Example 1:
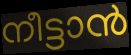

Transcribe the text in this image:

നീട്ടാൻ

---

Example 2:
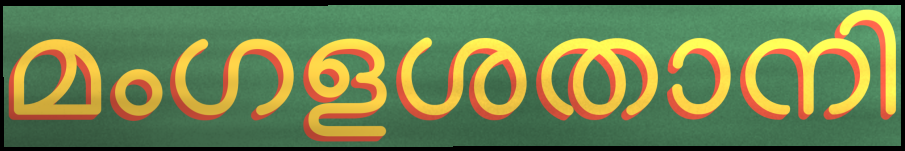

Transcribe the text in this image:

മംഗളശതാനി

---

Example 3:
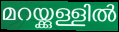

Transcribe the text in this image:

മറയ്ക്കുള്ളിൽ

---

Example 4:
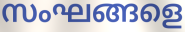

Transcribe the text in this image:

സംഘങ്ങളെ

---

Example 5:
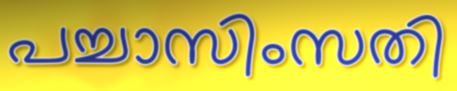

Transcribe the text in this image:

പച്ചാസിംസതി